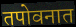
तपोवनात